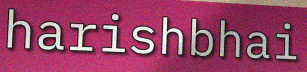
harishbhai